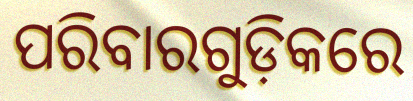
ପରିବାରଗୁଡ଼ିକରେ